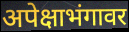
अपेक्षाभंगावर